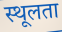
स्थूलता